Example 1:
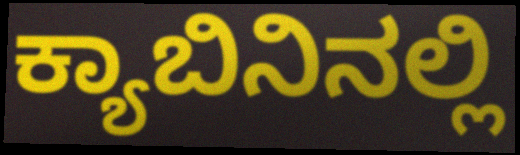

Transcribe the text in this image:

ಕ್ಯಾಬಿನಿನಲ್ಲಿ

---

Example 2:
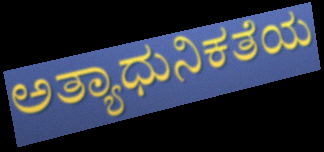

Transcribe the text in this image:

ಅತ್ಯಾಧುನಿಕತೆಯ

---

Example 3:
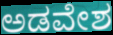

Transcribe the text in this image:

ಅಡವೇಶ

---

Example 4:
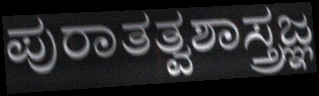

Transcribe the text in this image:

ಪುರಾತತ್ವಶಾಸ್ತ್ರಜ್ಞ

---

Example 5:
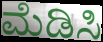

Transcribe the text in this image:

ಮೆಡಿಸಿ